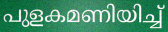
പുളകമണിയിച്ച്